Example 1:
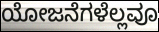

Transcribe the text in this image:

ಯೋಜನೆಗಳೆಲ್ಲವೂ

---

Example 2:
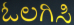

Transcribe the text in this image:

ಓಲಗಿಸಿ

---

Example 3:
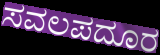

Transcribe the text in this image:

ಸವಲಪದೂರ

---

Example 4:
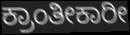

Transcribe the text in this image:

ಕ್ರಾಂತೀಕಾರೀ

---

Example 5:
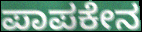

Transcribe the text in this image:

ಪಾಪಕೇನ